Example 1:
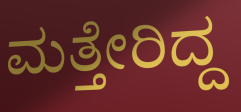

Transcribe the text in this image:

ಮತ್ತೇರಿದ್ದ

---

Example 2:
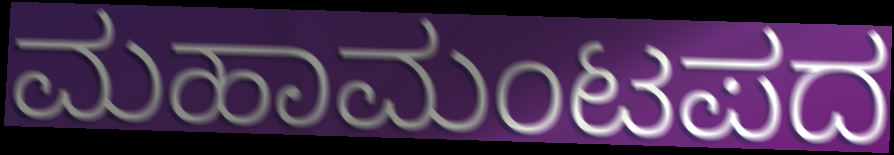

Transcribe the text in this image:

ಮಹಾಮಂಟಪದ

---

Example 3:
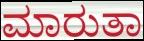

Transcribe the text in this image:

ಮಾರುತಾ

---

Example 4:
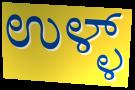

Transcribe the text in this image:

ಉಳ್ಳ್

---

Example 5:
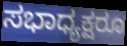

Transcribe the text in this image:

ಸಭಾಧ್ಯಕ್ಷರೂ